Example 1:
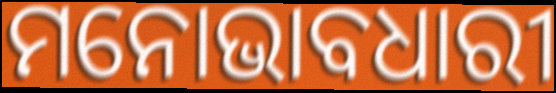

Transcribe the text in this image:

ମନୋଭାବଧାରୀ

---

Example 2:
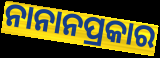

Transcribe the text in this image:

ନାନାନପ୍ରକାର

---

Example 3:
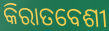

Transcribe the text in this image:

କିରାତବେଶୀ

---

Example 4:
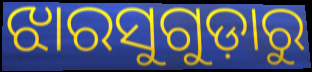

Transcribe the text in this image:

ଝାରସୁଗୁଡ଼ାରୁ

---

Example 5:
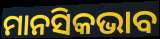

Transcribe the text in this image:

ମାନସିକଭାବ